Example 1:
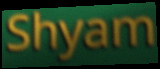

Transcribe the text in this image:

Shyam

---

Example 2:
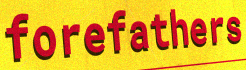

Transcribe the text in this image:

forefathers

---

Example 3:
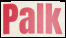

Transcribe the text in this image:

Palk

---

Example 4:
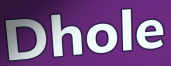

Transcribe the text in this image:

Dhole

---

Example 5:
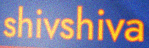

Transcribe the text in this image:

shivshiva